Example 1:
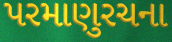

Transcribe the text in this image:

પરમાણુરચના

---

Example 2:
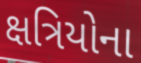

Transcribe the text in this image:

ક્ષત્રિયોના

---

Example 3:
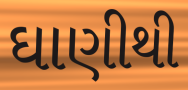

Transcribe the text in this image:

ઘાણીથી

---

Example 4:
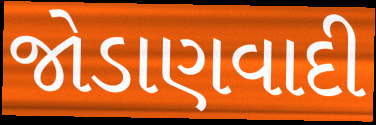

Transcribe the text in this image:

જોડાણવાદી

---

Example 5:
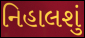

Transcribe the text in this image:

નિહાલશું